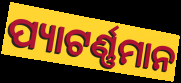
ପ୍ୟାଟର୍ଣ୍ଣମାନ